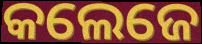
କଲେଜେ